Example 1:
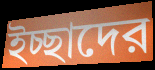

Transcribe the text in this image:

ইচ্ছাদের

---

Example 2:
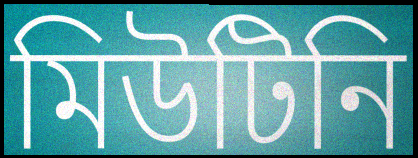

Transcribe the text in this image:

মিউটিনি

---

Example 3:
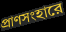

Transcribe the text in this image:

প্রাণসংহারে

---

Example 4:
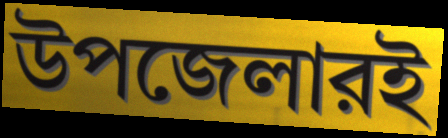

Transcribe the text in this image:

উপজেলারই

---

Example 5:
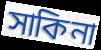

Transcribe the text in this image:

সাকিনা